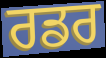
ਰਡਰ